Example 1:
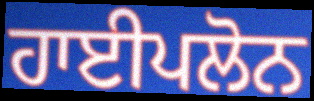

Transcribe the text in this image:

ਹਾਈਪਲੋਨ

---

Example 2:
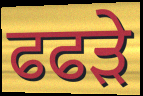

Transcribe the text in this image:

ਫਫੜੇ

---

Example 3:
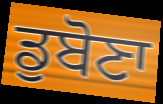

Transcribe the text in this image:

ਡੁਬੋਣਾ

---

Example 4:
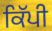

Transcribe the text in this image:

ਕਿੱਪੀ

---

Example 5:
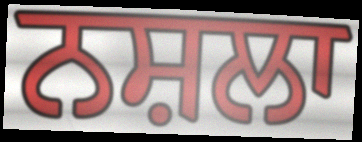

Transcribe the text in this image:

ਨਸ਼ਲਾ